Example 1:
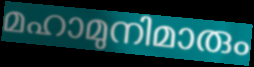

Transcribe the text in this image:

മഹാമുനിമാരും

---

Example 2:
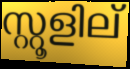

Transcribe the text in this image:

സ്റ്റൂളില്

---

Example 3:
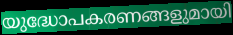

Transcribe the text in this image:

യുദ്ധോപകരണങ്ങളുമായി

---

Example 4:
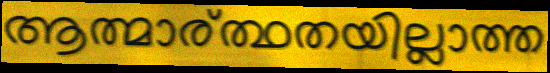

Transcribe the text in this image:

ആത്മാര്ത്ഥതയില്ലാത്ത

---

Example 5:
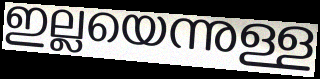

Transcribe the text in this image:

ഇല്ലയെന്നുള്ള